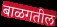
बाळगतील